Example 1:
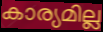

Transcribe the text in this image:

കാര്യമില്ല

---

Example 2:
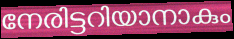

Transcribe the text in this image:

നേരിട്ടറിയാനാകും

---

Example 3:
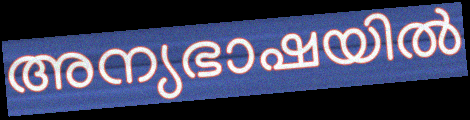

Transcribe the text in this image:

അന്യഭാഷയിൽ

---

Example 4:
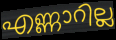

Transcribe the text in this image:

എണ്ണാറില്ല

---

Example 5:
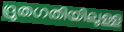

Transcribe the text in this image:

ദ്രുതഗതിയിലുള്ള